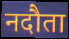
नदौता